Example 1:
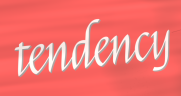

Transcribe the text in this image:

tendency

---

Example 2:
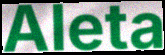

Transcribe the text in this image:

Aleta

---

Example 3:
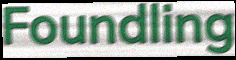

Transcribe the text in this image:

Foundling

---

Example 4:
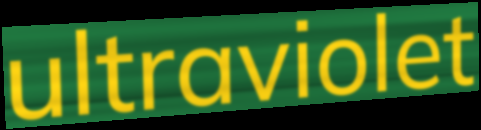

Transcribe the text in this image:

ultraviolet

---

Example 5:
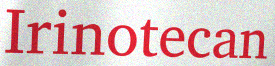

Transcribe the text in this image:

Irinotecan